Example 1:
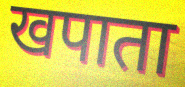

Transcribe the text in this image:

खपाता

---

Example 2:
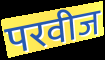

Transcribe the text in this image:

परवीज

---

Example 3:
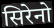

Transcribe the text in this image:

सिरेनो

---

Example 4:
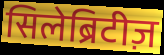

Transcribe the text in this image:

सिलेब्रिटीज़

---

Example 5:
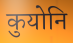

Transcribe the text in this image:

कुयोनि